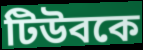
টিউবকে